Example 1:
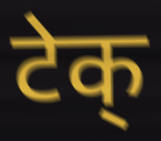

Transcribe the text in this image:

टेक्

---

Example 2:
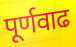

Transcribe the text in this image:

पूर्णवाढ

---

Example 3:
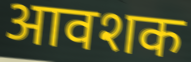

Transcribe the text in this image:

आवशक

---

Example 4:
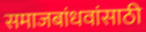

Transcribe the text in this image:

समाजबांधवांसाठी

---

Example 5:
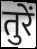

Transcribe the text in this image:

तुरें